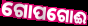
ଗୋପଗୋଈ